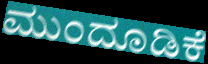
ಮುಂದೂಡಿಕೆ